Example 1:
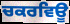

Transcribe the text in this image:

ਚਕਰਵਿਊ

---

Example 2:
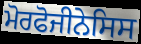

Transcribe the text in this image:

ਮੋਰਫੋਜੀਨੇਸਿਸ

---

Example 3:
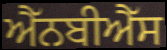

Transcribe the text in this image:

ਐੱਨਬੀਐੱਸ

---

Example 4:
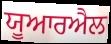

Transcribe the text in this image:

ਯੂਆਰਐਲ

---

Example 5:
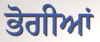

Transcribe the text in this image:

ਭੋਗੀਆਂ